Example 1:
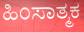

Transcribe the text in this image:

ಹಿಂಸಾತ್ಮಕ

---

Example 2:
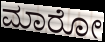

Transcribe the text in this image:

ಮಾರೋ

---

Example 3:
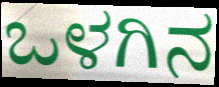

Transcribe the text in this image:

ಒಳಗಿನ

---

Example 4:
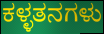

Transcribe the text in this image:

ಕಳ್ಳತನಗಳು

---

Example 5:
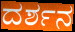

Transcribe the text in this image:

ದರ್ಶನ